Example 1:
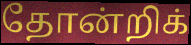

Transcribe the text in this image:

தோன்றிக்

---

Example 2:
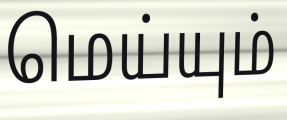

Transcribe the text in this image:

மெய்யும்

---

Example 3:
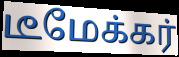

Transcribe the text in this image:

டீமேக்கர்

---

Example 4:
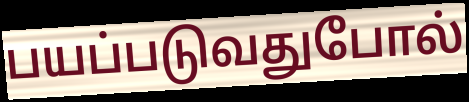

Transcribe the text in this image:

பயப்படுவதுபோல்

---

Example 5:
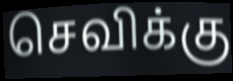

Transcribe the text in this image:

செவிக்கு